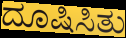
ದೂಷಿಸಿತು